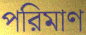
পরিমাণ